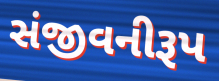
સંજીવનીરૂપ